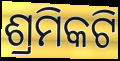
ଶ୍ରମିକଟି